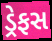
ડ્રેફસ